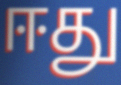
ஈது